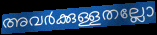
അവർക്കുള്ളതല്ലോ